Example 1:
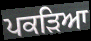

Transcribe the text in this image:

ਪਕੜਿਆ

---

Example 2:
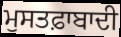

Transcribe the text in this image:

ਮੁਸਤਫ਼ਾਬਾਦੀ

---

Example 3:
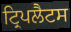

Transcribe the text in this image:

ਟ੍ਰਿਪਲੈਟਸ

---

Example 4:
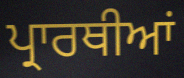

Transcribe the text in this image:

ਪ੍ਰਾਰਥੀਆਂ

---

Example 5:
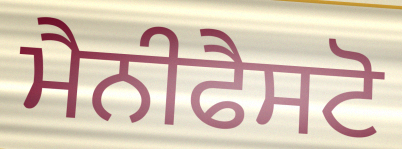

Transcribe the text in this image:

ਮੈਨੀਫੈਸਟੋ